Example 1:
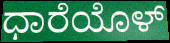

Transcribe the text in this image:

ಧಾರೆಯೊಳ್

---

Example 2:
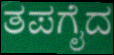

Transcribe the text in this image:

ತಪಗೈದ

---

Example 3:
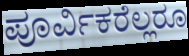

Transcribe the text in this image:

ಪೂರ್ವಿಕರೆಲ್ಲರೂ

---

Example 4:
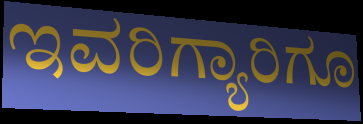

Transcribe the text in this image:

ಇವರಿಗ್ಯಾರಿಗೂ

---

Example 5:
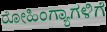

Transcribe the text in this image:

ರೋಹಿಂಗ್ಯಾಗಳಿಗೆ